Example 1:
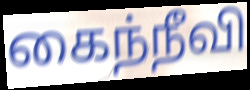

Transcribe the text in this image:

கைந்நீவி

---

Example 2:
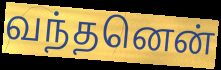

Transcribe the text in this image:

வந்தனென்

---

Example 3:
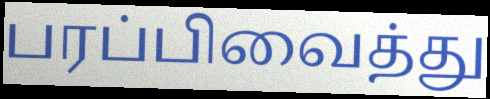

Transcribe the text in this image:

பரப்பிவைத்து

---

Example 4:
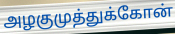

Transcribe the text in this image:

அழகுமுத்துக்கோன்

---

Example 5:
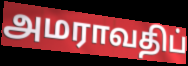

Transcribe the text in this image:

அமராவதிப்